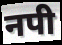
नपी